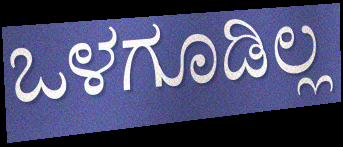
ಒಳಗೂಡಿಲ್ಲ